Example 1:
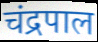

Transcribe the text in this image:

चंद्रपाल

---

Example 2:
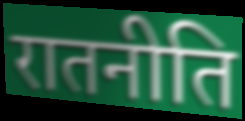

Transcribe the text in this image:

रातनीति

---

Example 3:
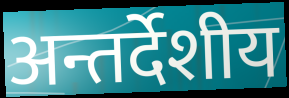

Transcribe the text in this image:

अन्तर्देशीय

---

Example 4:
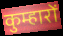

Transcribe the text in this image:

कुम्हारों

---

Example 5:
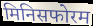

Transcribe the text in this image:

मिनिसफोरम